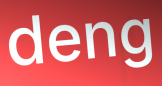
deng